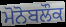
ਮੋਨੋਬਲੌਕ